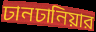
ঢানঢানিয়ার